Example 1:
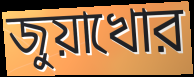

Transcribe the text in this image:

জুয়াখোর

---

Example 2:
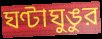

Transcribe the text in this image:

ঘণ্টাঘুঙুর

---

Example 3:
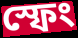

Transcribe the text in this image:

স্ফেং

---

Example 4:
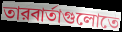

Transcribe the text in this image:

তারবার্তাগুলোতে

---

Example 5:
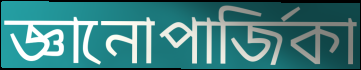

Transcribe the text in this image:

জ্ঞানোপার্জিকা